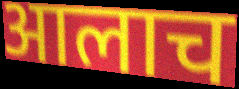
आलाच